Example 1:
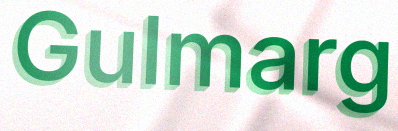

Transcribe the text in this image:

Gulmarg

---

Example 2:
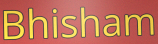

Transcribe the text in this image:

Bhisham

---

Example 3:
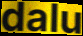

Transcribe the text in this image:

dalu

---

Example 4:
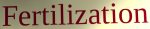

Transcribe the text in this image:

Fertilization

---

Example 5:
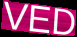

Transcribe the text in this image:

VED